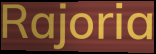
Rajoria